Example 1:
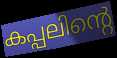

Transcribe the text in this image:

കപ്പലിന്റെ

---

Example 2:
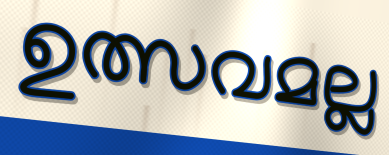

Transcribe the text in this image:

ഉത്സവമല്ല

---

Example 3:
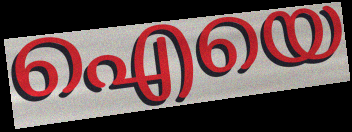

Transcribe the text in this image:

ഐയെ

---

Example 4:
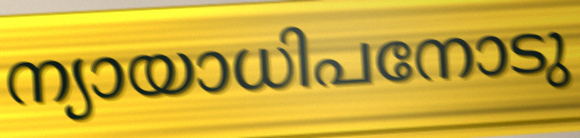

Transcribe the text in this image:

ന്യായാധിപനോടു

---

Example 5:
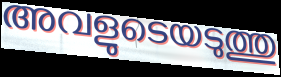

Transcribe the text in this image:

അവളുടെയടുത്തു